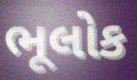
ભૂલોક